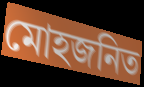
মোহজনিত